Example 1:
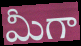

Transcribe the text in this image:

మీగా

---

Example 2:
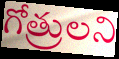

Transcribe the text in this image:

గోత్రులని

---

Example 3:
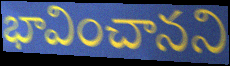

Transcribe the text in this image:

భావించానని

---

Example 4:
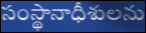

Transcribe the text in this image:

సంస్థానాధీశులను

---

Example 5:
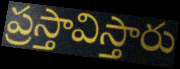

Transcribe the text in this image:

ప్రస్తావిస్తారు